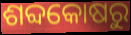
ଶବ୍ଦକୋଷରୁ